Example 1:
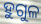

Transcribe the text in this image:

ହୁଗୁଳ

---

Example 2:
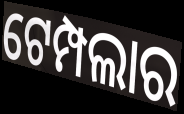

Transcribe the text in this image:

ଟେମ୍ପଲାର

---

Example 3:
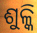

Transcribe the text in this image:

ଶୁଳ୍କି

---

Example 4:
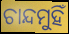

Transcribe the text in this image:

ଚାନ୍ଦମୁହିଁ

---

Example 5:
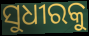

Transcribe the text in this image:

ସୁଧୀରକୁ